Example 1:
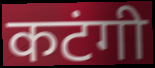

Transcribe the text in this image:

कटंगी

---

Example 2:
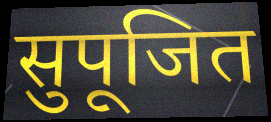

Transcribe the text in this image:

सुपूजित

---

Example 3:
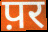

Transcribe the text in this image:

प़र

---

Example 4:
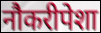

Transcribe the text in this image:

नौकरीपेशा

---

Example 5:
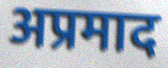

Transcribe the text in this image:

अप्रमाद